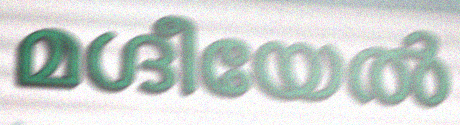
മഗ്ദീയേൽ